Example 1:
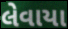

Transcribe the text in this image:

લેવાયા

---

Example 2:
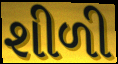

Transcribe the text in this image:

શીળી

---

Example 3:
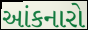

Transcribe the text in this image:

આંકનારો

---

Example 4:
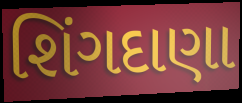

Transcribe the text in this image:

શિંગદાણા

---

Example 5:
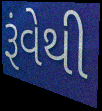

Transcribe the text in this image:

રૂંવેથી